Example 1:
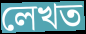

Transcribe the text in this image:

লেখত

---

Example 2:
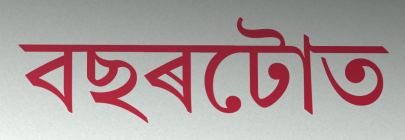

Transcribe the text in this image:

বছৰটোত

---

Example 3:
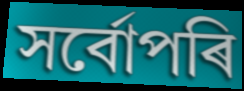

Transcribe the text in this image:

সৰ্বোপৰি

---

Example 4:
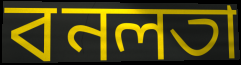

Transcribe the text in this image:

বনলতা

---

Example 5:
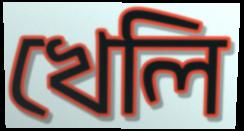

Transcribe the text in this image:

খেলি